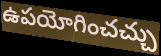
ఉపయోగించచ్చు